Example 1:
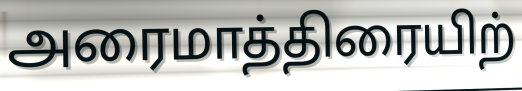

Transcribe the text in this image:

அரைமாத்திரையிற்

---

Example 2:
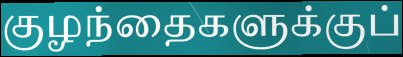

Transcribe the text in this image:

குழந்தைகளுக்குப்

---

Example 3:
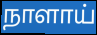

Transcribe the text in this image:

நாளாய்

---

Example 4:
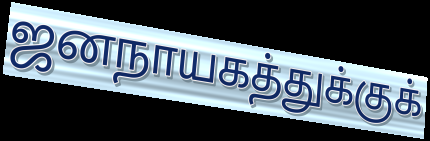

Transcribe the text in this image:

ஜனநாயகத்துக்குக்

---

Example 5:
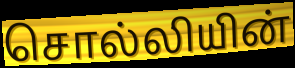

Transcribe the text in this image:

சொல்லியின்